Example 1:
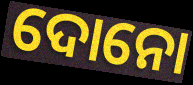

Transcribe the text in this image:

ଦୋନୋ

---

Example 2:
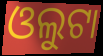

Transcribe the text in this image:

ଓଲୁଟା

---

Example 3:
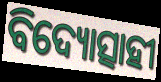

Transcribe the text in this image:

ବିଦ୍ୟୋତ୍ସାହୀ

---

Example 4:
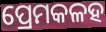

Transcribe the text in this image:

ପ୍ରେମକଳହ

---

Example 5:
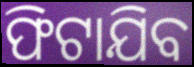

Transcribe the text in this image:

ଫିଟାଯିବ